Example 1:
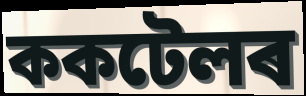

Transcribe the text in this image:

ককটেলৰ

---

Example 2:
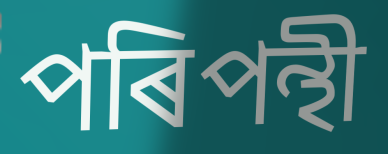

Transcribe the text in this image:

পৰিপন্থী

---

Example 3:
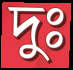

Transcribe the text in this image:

দুঃ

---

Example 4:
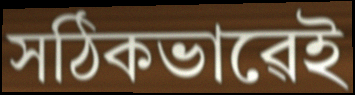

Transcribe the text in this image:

সঠিকভাৱেই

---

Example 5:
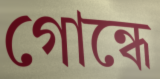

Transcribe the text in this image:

গোন্ধে